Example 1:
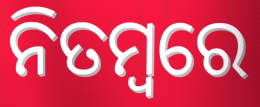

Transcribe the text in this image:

ନିତମ୍ବରେ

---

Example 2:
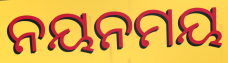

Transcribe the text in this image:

ନୟନମୟ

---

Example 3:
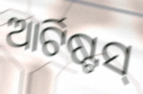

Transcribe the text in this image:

ଆର୍ଟିଷ୍ଟସ୍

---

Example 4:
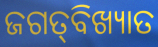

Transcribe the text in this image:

ଜଗତ୍‌ବିଖ୍ୟାତ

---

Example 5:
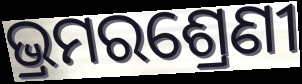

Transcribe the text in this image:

ଭ୍ରମରଶ୍ରେଣୀ